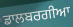
ਡਾਲਬਰਗੀਆ